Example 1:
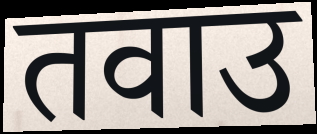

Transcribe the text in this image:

तवाउ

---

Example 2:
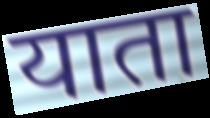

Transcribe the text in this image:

याता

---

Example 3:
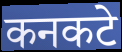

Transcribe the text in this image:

कनकटे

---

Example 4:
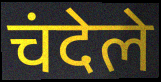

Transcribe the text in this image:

चंदेले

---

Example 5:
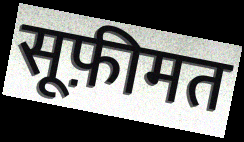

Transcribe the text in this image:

सूफ़ीमत